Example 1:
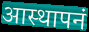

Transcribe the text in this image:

आस्थापनं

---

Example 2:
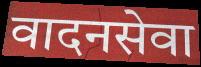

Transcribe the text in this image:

वादनसेवा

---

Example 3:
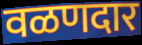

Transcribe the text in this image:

वळणदार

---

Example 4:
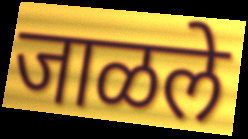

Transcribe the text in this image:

जाळले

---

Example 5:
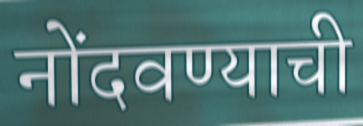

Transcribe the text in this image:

नोंदवण्याची